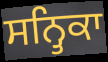
ਸਨ੍ਤਿਕਾ